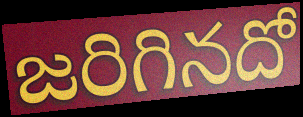
జరిగినదో